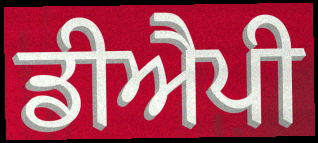
ਡੀਐਪੀ